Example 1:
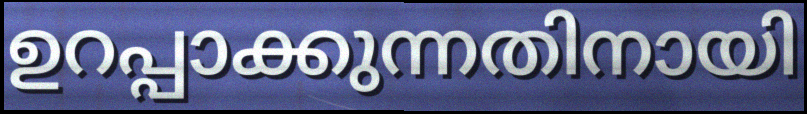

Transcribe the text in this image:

ഉറപ്പാക്കുന്നതിനായി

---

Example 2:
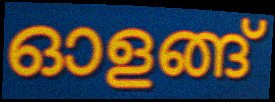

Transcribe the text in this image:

ഓളങ്ങ്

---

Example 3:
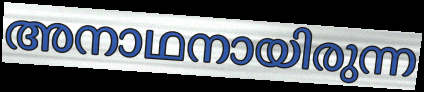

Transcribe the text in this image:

അനാഥനായിരുന്ന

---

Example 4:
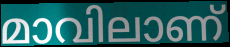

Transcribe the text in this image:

മാവിലാണ്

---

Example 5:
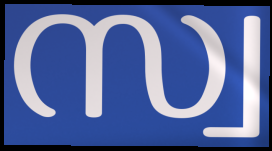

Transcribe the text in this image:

സ്വ